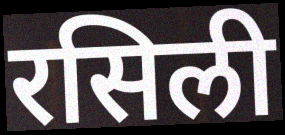
रसिली